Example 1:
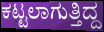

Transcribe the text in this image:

ಕಟ್ಟಲಾಗುತ್ತಿದ್ದ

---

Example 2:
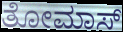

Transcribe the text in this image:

ತೋಮಾಸ್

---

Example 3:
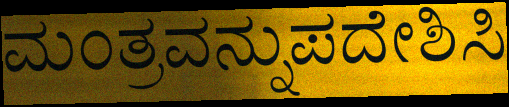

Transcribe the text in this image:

ಮಂತ್ರವನ್ನುಪದೇಶಿಸಿ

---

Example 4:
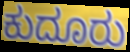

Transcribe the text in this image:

ಕುದೂರು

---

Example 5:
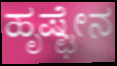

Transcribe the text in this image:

ಹೃಷ್ಟೇನ